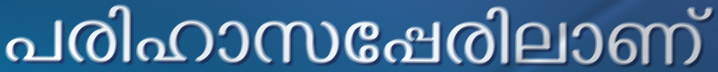
പരിഹാസപ്പേരിലാണ്